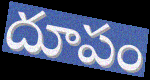
దూపం